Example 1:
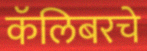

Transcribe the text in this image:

कॅलिबरचे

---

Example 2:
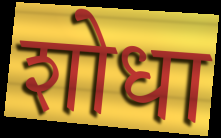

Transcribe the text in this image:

शोधा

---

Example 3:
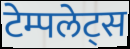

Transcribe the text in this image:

टेम्पलेट्स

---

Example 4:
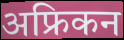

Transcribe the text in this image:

अफ्रिकन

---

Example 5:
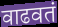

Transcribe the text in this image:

वाढवतं